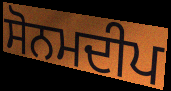
ਸੋਨਮਦੀਪ